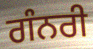
ਗੰਨਰੀ